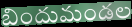
బిందుమండల